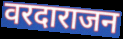
वरदाराजन